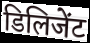
डिलिजेंट